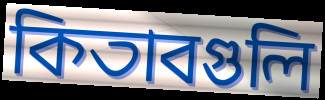
কিতাবগুলি